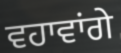
ਵਹਾਵਾਂਗੇ